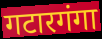
गटारगंगा